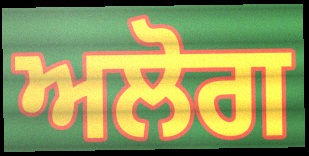
ਅਲੋਗ